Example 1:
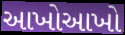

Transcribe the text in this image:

આખોઆખો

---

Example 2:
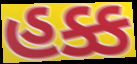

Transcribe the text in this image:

હક્ક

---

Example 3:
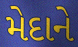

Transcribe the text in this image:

મેદાને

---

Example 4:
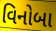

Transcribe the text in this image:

વિનોબા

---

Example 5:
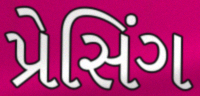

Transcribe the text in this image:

પ્રેસિંગ